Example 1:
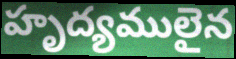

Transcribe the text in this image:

హృద్యములైన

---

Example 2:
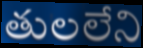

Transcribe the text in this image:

తులలేని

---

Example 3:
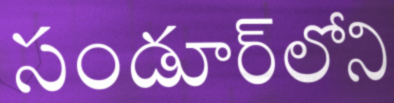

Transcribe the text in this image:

సండూర్‌లోని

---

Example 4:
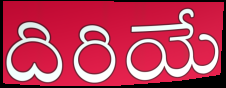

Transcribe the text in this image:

దిరియే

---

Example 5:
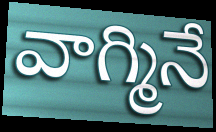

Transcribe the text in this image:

వాగ్మినే